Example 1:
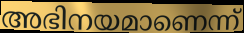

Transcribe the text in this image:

അഭിനയമാണെന്ന്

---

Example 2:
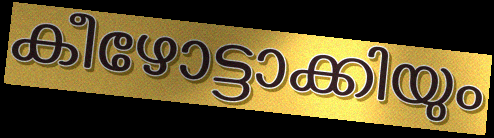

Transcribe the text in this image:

കീഴോട്ടാക്കിയും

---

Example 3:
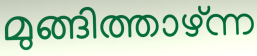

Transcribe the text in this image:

മുങ്ങിത്താഴ്ന്ന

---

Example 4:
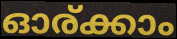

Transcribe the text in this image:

ഓര്ക്കാം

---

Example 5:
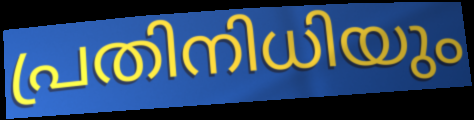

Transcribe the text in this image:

പ്രതിനിധിയും